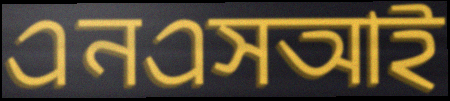
এনএসআই